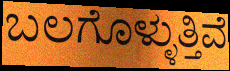
ಬಲಗೊಳ್ಳುತ್ತಿವೆ